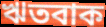
ঋতবাক